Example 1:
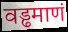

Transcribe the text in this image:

वड्ढमाणं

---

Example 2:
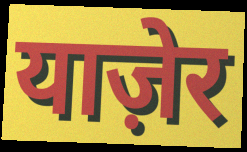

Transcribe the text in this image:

याज़ेर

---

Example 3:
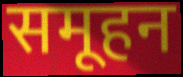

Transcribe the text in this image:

समूहन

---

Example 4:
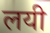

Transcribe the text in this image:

लयी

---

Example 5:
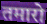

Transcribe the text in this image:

तमारो